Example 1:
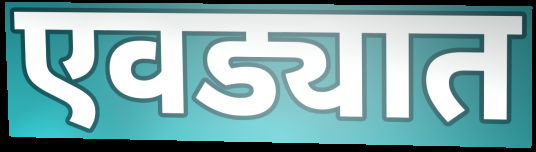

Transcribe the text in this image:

एवड्यात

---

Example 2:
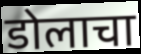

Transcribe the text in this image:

डोलाचा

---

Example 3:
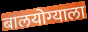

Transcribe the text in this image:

बालयोग्याला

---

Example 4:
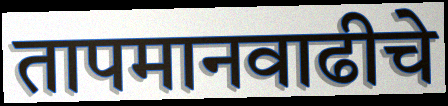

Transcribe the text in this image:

तापमानवाढीचे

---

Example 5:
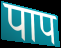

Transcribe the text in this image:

पाप